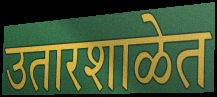
उतारशाळेत